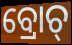
ବ୍ରୋଚ୍